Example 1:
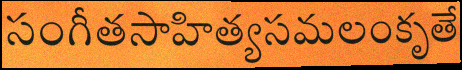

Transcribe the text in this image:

సంగీతసాహిత్యసమలంకృతే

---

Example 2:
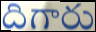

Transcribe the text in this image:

దిగారు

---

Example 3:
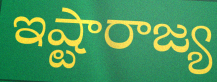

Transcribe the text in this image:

ఇష్టారాజ్య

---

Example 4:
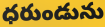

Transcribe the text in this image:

ధరుండును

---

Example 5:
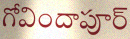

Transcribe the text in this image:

గోవిందాపూర్